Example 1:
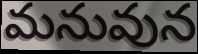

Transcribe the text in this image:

మనువున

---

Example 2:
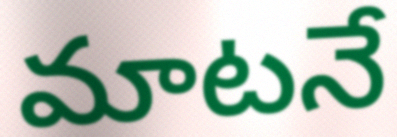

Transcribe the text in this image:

మాటనే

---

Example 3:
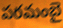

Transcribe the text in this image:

పరమంబై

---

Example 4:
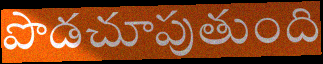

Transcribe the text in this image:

పొడచూపుతుంది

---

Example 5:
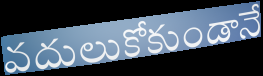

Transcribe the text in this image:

వదులుకోకుండానే